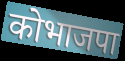
कोभाजपा